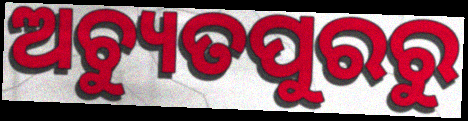
ଅଚ୍ୟୁତପୁରରୁ